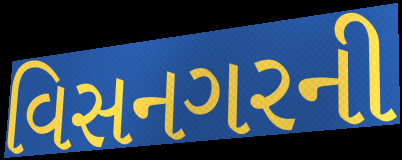
વિસનગરની